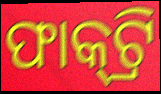
ଫାକ୍‍ଟ୍ରି